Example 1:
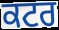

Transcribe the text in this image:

ਕਟਰ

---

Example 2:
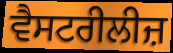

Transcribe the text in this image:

ਵੈਸਟਰੀਲੀਜ਼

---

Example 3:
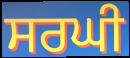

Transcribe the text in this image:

ਸਰਘੀ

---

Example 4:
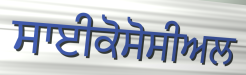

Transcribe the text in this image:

ਸਾਈਕੋਸੋਸੀਅਲ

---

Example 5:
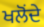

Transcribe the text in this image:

ਖਲੋਂਦੇ